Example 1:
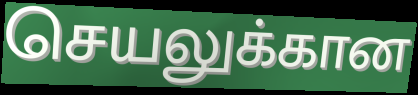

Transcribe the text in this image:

செயலுக்கான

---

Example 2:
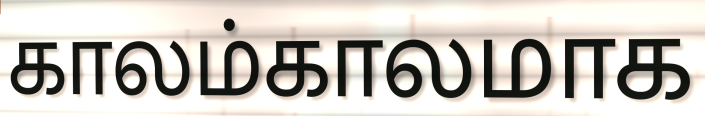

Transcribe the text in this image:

காலம்காலமாக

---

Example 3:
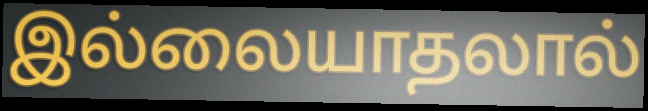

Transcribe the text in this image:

இல்லையாதலால்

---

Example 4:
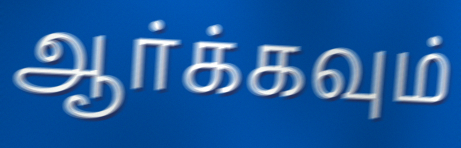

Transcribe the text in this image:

ஆர்க்கவும்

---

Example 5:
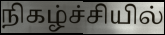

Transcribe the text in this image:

நிகழ்ச்சியில்